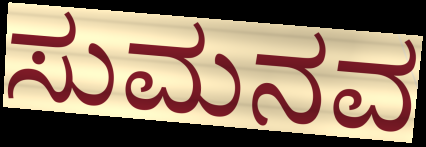
ಸುಮನವ